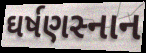
ઘર્ષણસ્નાન